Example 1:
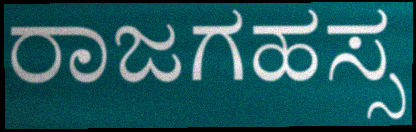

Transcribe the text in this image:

ರಾಜಗಹಸ್ಸ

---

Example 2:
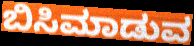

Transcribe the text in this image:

ಬಿಸಿಮಾಡುವ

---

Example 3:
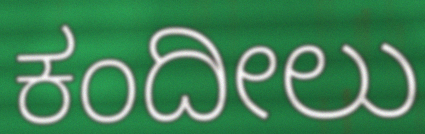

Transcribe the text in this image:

ಕಂದೀಲು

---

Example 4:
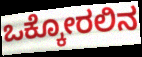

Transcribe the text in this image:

ಒಕ್ಕೋರಲಿನ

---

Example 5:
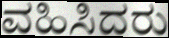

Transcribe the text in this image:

ವಹಿಸಿದರು